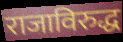
राजाविरुद्ध